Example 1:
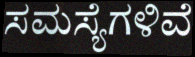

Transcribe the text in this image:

ಸಮಸ್ಯೆಗಳಿವೆ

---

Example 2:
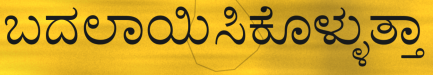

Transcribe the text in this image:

ಬದಲಾಯಿಸಿಕೊಳ್ಳುತ್ತಾ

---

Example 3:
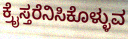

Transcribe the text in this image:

ಕ್ರೈಸ್ತರೆನಿಸಿಕೊಳ್ಳುವ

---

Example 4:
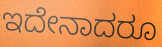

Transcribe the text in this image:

ಇದೇನಾದರೂ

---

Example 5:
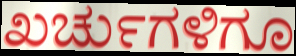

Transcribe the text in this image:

ಖರ್ಚುಗಳಿಗೂ